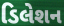
ડિલેશન